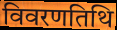
विवरणतिथि